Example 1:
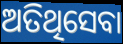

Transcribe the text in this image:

ଅତିଥିସେବା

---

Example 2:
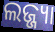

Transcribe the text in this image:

ଲଜ୍ଜ୍ୟା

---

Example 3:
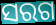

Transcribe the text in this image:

ସରଗ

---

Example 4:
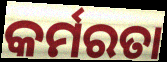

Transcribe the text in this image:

କର୍ମରତା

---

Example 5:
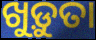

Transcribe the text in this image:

ଖୁଡ଼ୁତା